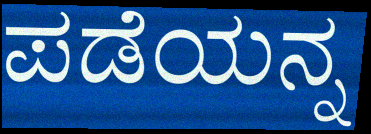
ಪಡೆಯನ್ನ